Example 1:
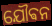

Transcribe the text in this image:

ଯୌଵନ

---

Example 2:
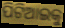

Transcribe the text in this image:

ପିଟିଆଇକୁ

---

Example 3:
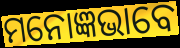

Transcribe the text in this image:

ମନୋଜ୍ଞଭାବେ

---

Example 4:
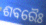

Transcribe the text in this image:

ଶବରୈଃ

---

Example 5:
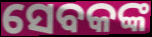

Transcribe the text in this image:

ସେବକଙ୍କ